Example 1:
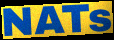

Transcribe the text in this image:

NATs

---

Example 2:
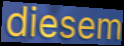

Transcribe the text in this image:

diesem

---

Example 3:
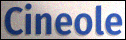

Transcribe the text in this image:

Cineole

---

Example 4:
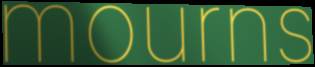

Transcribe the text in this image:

mourns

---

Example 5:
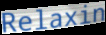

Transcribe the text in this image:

Relaxin